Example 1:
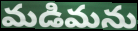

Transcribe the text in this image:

మడిమను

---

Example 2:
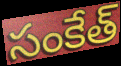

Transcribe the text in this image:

సంకేత్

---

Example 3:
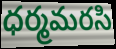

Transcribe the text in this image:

ధర్మమరసి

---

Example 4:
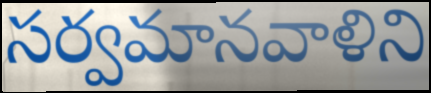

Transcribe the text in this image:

సర్వమానవాళిని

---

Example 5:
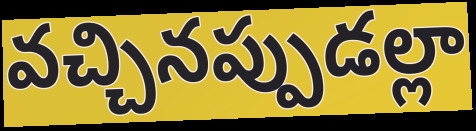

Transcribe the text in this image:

వచ్చినప్పుడల్లా